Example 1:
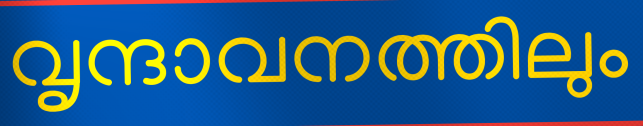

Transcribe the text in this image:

വൃന്ദാവനത്തിലും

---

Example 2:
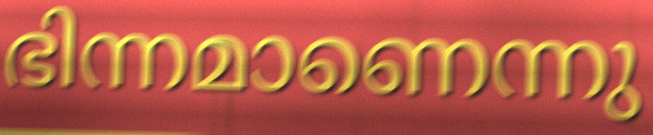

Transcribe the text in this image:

ഭിന്നമാണെന്നു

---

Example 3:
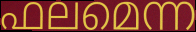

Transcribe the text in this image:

ഫലമെന്ന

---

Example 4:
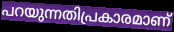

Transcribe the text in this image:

പറയുന്നതിപ്രകാരമാണ്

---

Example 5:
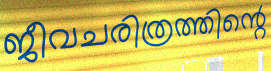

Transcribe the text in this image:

ജീവചരിത്രത്തിന്റെ